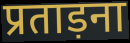
प्रताड़ना